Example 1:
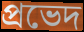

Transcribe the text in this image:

প্ৰভেদ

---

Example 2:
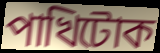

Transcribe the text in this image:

পাখিটোক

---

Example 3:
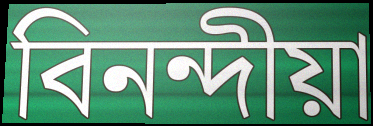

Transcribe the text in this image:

বিনন্দীয়া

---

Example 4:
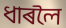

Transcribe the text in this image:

ধাৰলৈ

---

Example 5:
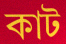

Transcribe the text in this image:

কাট